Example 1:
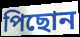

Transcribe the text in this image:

পিছোন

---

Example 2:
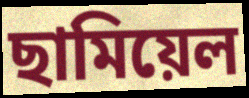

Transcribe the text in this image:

ছামিয়েল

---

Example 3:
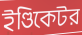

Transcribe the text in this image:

ইণ্ডিকেটর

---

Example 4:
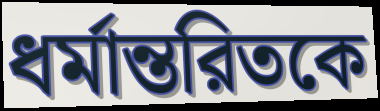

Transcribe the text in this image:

ধর্মান্তরিতকে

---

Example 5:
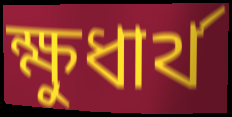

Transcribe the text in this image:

ক্ষুধার্থ